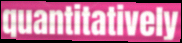
quantitatively